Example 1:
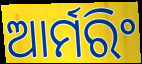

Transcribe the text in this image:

ଆର୍ମରିଂ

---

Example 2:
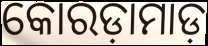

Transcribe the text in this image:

କୋରଡ଼ାମାଡ଼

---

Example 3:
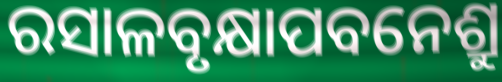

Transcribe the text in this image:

ରସାଳବୃକ୍ଷାପବନେଶ୍ରୁ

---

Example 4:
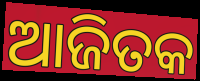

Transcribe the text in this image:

ଆଜିତକ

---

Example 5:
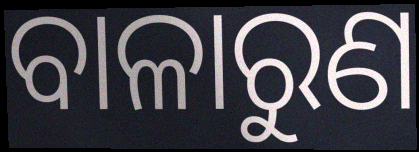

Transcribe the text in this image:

ବାଳାରୁଣ